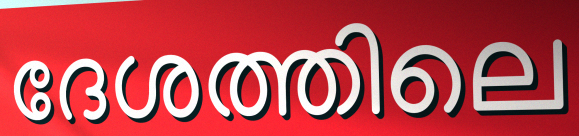
ദേശത്തിലെ